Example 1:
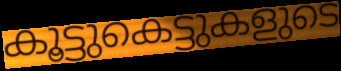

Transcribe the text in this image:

കൂട്ടുകെട്ടുകളുടെ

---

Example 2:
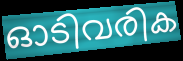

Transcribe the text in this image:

ഓടിവരിക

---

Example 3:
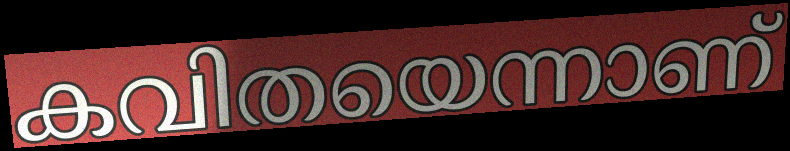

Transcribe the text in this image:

കവിതയെന്നാണ്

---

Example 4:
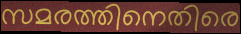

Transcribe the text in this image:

സമരത്തിനെതിരെ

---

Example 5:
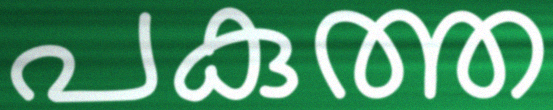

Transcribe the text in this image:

പകുത്ത